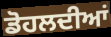
ਡੋਹਲਦੀਆਂ